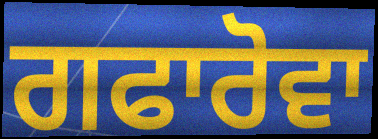
ਗਫਾਰੋਵਾ